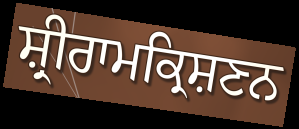
ਸ਼੍ਰੀਰਾਮਕ੍ਰਿਸ਼ਣਨ